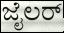
ಜೈಲರ್